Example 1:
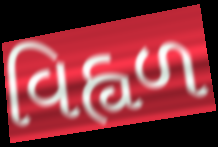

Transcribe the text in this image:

વિહ્વળ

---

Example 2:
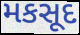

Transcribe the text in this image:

મકસૂદ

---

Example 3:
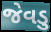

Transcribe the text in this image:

જેવડુ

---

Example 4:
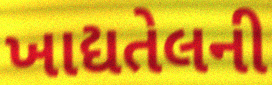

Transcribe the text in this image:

ખાદ્યતેલની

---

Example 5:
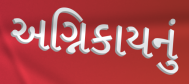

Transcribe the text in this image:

અગ્નિકાયનું